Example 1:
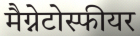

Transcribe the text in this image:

मैग्नेटोस्फीयर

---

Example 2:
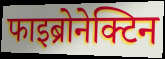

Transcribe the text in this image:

फाइब्रोनेक्टिन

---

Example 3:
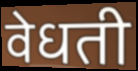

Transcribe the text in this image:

वेधती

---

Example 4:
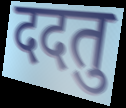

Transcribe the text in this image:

ददतु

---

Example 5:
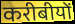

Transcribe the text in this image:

करीबीयों